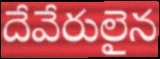
దేవేరులైన